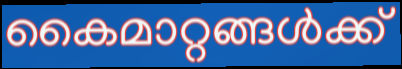
കൈമാറ്റങ്ങൾക്ക്